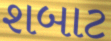
શબાટ